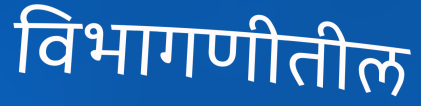
विभागणीतील